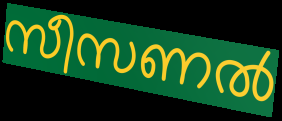
സീസണൽ